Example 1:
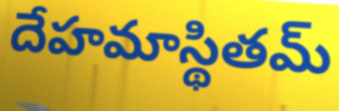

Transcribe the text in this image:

దేహమాస్థితమ్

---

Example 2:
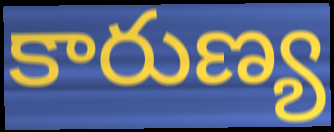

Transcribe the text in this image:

కారుణ్య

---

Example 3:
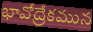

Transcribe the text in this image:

భావోద్రేకమున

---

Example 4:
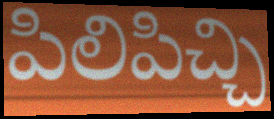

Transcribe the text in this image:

పిలిపిచ్చి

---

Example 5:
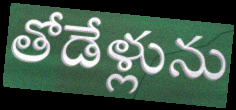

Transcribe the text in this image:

తోడేళ్లును